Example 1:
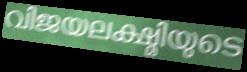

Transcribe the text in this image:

വിജയലക്ഷ്മിയുടെ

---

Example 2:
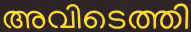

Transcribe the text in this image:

അവിടെത്തി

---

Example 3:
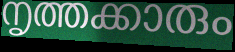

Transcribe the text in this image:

നൃത്തക്കാരും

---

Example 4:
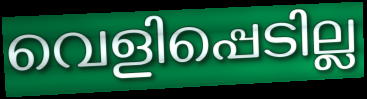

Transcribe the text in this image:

വെളിപ്പെടില്ല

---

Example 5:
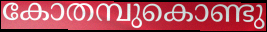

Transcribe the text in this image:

കോതമ്പുകൊണ്ടു